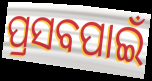
ପ୍ରସବପାଇଁ